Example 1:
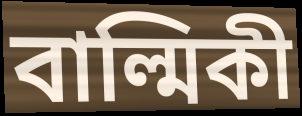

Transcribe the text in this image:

বাল্মিকী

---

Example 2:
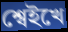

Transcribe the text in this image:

শ্বেইখে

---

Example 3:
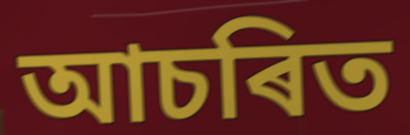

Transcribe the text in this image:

আচৰিত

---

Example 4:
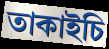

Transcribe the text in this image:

তাকাইচি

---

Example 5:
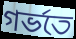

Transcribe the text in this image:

গৰ্ভতে